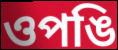
ওপঙি